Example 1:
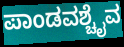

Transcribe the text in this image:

ಪಾಂಡವಶ್ಚೈವ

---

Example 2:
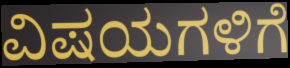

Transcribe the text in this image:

ವಿಷಯಗಳಿಗೆ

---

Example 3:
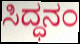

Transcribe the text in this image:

ಸಿದ್ಧನಂ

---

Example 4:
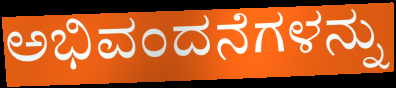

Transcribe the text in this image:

ಅಭಿವಂದನೆಗಳನ್ನು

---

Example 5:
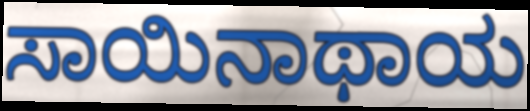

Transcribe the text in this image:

ಸಾಯಿನಾಥಾಯ